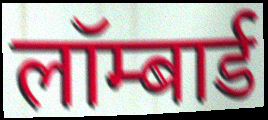
लॉम्बार्ड